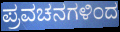
ಪ್ರವಚನಗಳಿಂದ